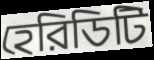
হেরিডিটি